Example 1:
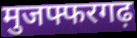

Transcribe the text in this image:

मुजफ्फरगढ़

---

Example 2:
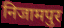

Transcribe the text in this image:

निजामपुर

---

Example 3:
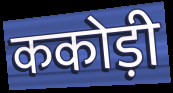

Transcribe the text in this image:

ककोड़ी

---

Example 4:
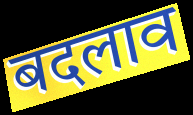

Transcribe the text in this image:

बदलाव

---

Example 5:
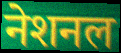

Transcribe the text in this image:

नेशनल